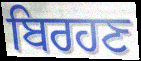
ਬਿਰਹਣ